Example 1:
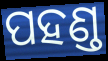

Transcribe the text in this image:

ପହଣ୍ଡ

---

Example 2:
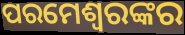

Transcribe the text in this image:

ପରମେଶ୍ୱରଙ୍କର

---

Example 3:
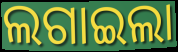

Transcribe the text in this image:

ଲଗାଇଲା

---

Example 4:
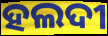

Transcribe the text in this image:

ହଲଦୀ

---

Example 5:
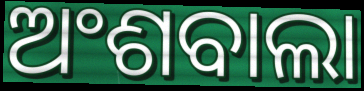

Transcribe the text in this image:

ଅଂଶବାଲା